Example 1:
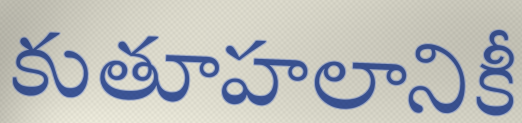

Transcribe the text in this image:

కుతూహలానికీ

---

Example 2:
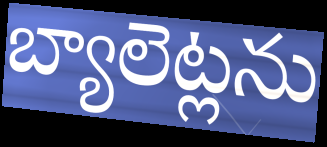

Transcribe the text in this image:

బ్యాలెట్లను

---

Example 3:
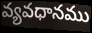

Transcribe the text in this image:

వ్యవధానము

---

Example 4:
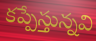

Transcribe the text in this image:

కప్పేస్తున్నవి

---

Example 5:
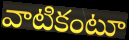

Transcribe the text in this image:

వాటికంటూ